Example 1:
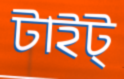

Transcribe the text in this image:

টাইট্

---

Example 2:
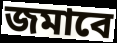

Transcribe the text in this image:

জমাবে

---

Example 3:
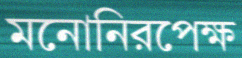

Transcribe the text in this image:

মনোনিরপেক্ষ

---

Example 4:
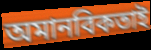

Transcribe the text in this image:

অমানবিকতাই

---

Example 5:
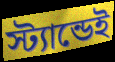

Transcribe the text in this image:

স্ট্যান্ডেই